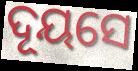
ଦୂୟସେ